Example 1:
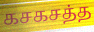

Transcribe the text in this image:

கசகசத்த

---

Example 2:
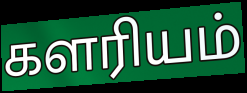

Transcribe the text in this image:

களரியம்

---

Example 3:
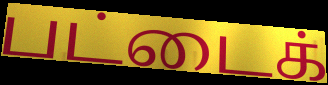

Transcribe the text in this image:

பட்டைக்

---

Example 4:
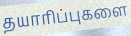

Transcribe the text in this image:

தயாரிப்புகளை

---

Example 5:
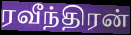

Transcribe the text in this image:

ரவீந்திரன்